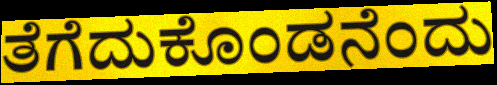
ತೆಗೆದುಕೊಂಡನೆಂದು